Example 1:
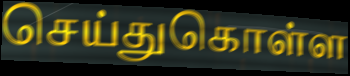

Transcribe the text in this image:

செய்துகொள்ள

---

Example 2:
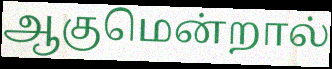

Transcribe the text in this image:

ஆகுமென்றால்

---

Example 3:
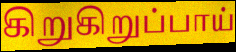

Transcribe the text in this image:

கிறுகிறுப்பாய்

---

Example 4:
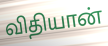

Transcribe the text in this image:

விதியான்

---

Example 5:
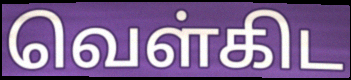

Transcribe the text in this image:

வெள்கிட